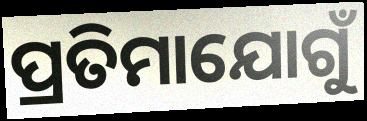
ପ୍ରତିମାଯୋଗୁଁ